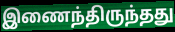
இணைந்திருந்தது